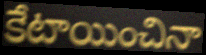
కేటాయించినా